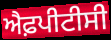
ਐਫ਼ਪੀਟੀਸੀ